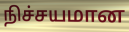
நிச்சயமான